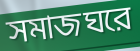
সমাজঘরে